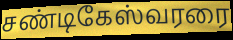
சண்டிகேஸ்வரரை